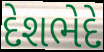
દેશભેદે